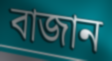
বাজান